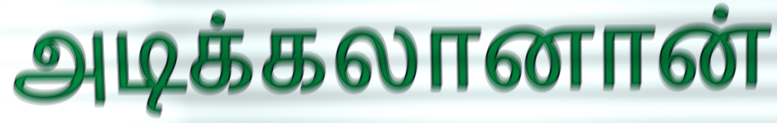
அடிக்கலானான்